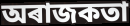
অৰাজকতা